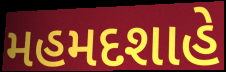
મહમદશાહે